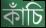
কাঁচি